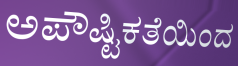
ಅಪೌಷ್ಟಿಕತೆಯಿಂದ